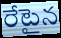
రేటైన